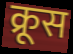
क्रूस